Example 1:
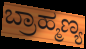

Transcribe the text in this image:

ಬ್ರಾಹ್ಮಣ್ಯ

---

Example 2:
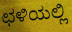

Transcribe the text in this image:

ಛಳಿಯಲ್ಲಿ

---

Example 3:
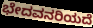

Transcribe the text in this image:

ಭೇದವನರಿಯದೆ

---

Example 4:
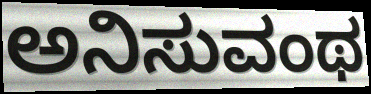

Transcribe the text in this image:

ಅನಿಸುವಂಥ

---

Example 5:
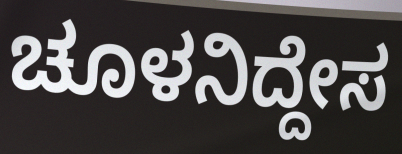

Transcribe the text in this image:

ಚೂಳನಿದ್ದೇಸ